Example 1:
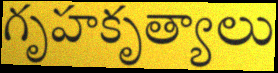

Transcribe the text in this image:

గృహకృత్యాలు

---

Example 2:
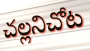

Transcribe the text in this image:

చల్లనిచోట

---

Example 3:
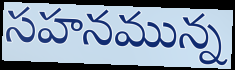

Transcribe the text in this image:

సహనమున్న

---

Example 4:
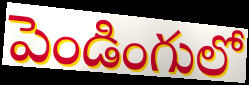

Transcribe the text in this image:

పెండింగులో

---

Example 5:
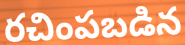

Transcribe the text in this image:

రచింపబడిన